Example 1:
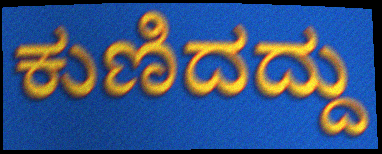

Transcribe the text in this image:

ಕುಣಿದದ್ದು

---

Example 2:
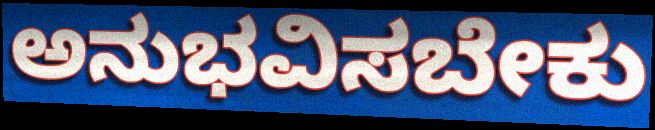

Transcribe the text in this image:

ಅನುಭವಿಸಬೇಕು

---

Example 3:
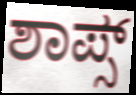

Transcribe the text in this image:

ಶಾಪ್ಸ್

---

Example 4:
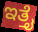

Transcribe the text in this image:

ಇತ್ತೈ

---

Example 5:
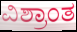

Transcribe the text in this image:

ವಿಶ್ರಾಂತ